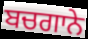
ਬਚਗਾਨੇ